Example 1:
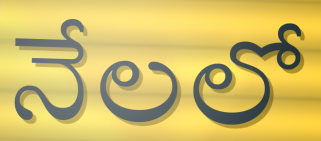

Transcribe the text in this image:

నేలలో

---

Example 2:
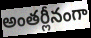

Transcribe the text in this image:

అంతర్లీనంగా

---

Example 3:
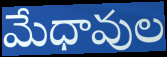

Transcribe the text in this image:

మేధావుల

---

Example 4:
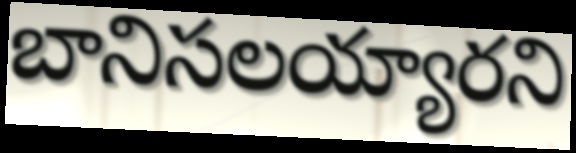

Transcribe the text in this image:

బానిసలయ్యారని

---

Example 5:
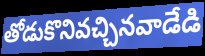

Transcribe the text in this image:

తోడుకొనివచ్చినవాడేడి